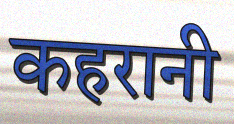
कहरानी